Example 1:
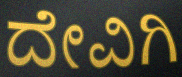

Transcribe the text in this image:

ದೇವಿಗಿ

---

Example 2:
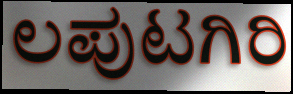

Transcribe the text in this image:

ಲಪುಟಗಿರಿ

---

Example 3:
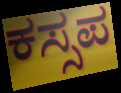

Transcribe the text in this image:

ಕಸ್ಸಪ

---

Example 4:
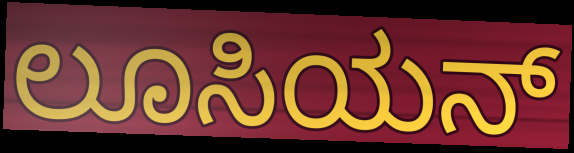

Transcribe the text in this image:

ಲೂಸಿಯನ್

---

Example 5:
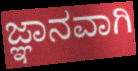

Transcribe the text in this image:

ಜ್ಞಾನವಾಗಿ